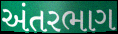
અંતરભાગ